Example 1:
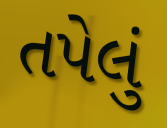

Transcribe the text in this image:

તપેલું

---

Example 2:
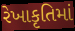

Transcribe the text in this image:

રેખાકૃતિમાં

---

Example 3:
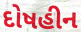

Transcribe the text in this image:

દોષહીન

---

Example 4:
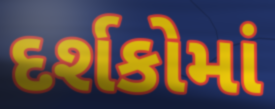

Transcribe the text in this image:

દર્શકોમાં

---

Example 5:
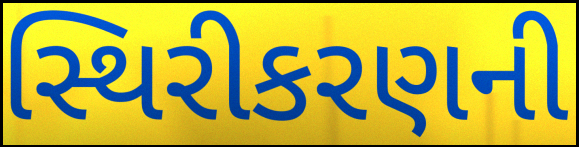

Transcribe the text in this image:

સ્થિરીકરણની